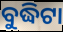
ବୁଦ୍ଧିଟା